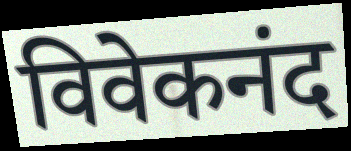
विवेकनंद